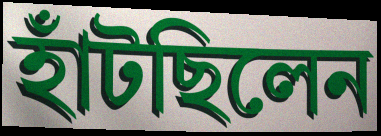
হাঁটছিলেন